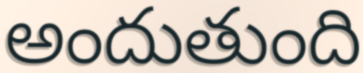
అందుతుంది